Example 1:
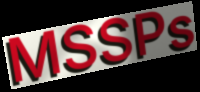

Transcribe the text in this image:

MSSPs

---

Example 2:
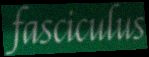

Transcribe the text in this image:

fasciculus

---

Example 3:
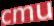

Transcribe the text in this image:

cmu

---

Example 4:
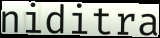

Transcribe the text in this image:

niditra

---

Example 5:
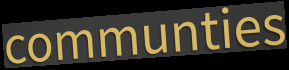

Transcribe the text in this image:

communties